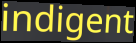
indigent